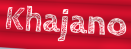
Khajano